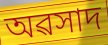
অৱসাদ